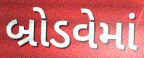
બ્રોડવેમાં